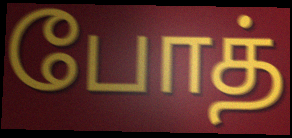
போத்